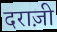
दराज़ी